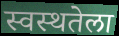
स्वस्थतेला